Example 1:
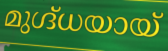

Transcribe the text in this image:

മുഗ്ദ്ധയായ്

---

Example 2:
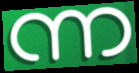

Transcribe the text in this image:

ന്ന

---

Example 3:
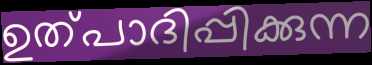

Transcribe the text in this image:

ഉത്പാദിപ്പിക്കുന്ന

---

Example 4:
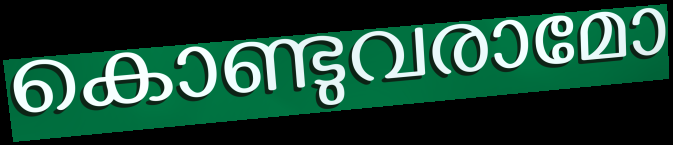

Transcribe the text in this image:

കൊണ്ടുവരാമോ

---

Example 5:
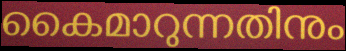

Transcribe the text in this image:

കൈമാറുന്നതിനും